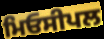
ਮਿਓਸੀਪਲ